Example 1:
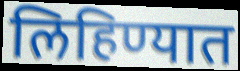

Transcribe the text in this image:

लिहिण्यात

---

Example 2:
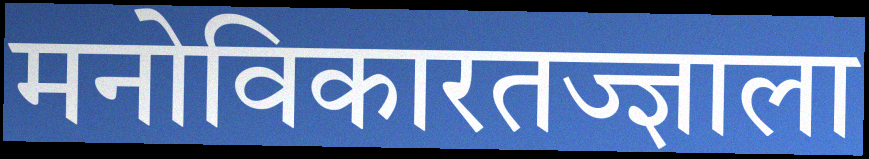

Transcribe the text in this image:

मनोविकारतज्ज्ञाला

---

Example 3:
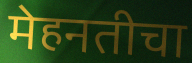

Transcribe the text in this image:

मेहनतीचा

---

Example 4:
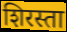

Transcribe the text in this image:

शिरस्ता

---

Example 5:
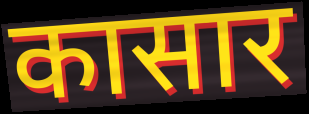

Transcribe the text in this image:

कासार